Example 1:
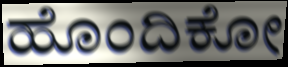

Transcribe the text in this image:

ಹೊಂದಿಕೋ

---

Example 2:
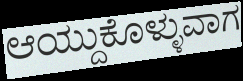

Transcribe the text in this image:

ಆಯ್ದುಕೊಳ್ಳುವಾಗ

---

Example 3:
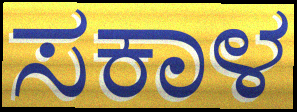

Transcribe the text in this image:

ಸಕಾಳ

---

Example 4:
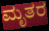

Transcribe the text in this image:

ಮೃತರ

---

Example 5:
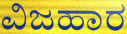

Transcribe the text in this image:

ವಿಜಹಾರ